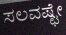
ಸಲವಷ್ಟೇ